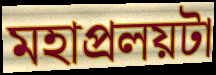
মহাপ্রলয়টা